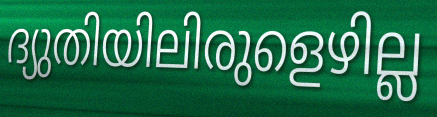
ദ്യുതിയിലിരുളെഴില്ല